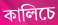
কালিচে